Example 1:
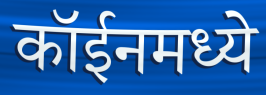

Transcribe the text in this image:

कॉईनमध्ये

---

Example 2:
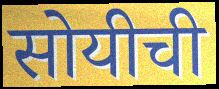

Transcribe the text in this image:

सोयीची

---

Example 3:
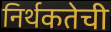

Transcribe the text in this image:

निर्थकतेची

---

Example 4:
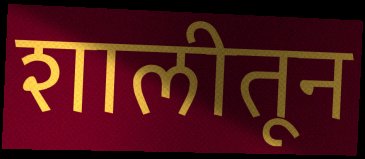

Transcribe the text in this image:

शालीतून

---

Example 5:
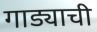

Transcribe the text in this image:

गाड्याची